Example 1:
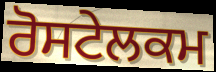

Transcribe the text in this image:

ਰੋਸਟੇਲਕਮ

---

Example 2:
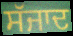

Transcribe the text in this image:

ਸੱਜਾਦ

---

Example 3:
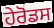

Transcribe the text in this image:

ਹੇਰੋਡਸ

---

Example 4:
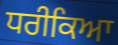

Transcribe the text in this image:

ਧਰੀਕਿਆ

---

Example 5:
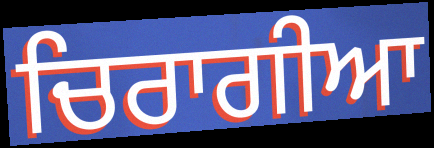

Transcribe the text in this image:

ਚਿਰਾਗੀਆ